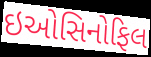
ઇઓસિનોફિલ